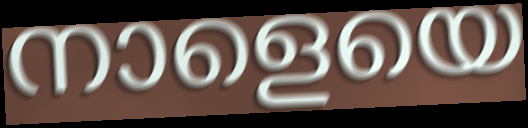
നാളെയെ